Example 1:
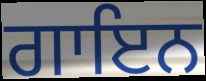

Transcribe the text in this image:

ਗਾਇਨ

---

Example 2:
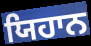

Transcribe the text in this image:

ਯਿਹਾਨ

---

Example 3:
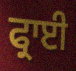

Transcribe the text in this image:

ਫ੍ਰਾਈ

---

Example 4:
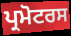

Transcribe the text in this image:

ਪ੍ਰਮੋਟਰਸ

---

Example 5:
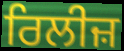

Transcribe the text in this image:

ਰਿਲੀਜ਼